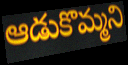
ఆడుకొమ్మని